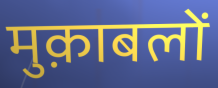
मुक़ाबलों